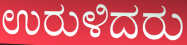
ಉರುಳಿದರು